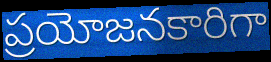
ప్రయోజనకారిగా